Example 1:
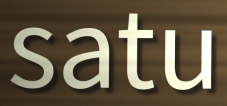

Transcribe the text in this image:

satu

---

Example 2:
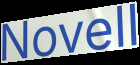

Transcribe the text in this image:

Novell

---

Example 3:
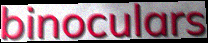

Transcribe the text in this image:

binoculars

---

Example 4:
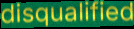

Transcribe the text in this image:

disqualified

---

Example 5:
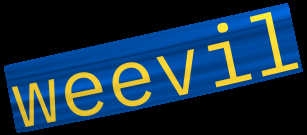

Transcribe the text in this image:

weevil